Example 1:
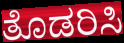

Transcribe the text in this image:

ತೊಡರಿಸಿ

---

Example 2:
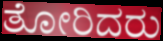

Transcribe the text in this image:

ತೋರಿದರು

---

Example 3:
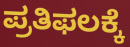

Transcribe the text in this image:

ಪ್ರತಿಫಲಕ್ಕೆ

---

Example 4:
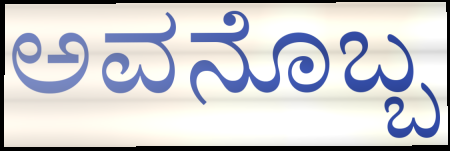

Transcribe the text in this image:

ಅವನೊಬ್ಬ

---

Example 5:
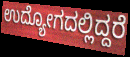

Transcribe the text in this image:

ಉದ್ಯೋಗದಲ್ಲಿದ್ದರೆ